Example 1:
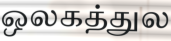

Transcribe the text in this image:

ஒலகத்துல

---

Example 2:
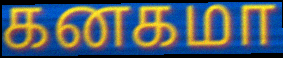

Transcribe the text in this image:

கனகமா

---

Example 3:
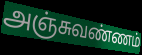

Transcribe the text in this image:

அஞ்சுவண்ணம்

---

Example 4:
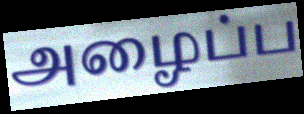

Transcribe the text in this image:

அழைப்ப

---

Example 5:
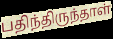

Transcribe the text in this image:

பதிந்திருந்தாள்